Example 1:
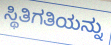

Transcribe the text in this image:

ಸ್ಥಿತಿಗತಿಯನ್ನು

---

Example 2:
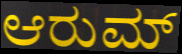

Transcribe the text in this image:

ಆರುಮ್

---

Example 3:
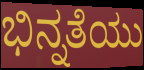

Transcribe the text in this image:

ಭಿನ್ನತೆಯು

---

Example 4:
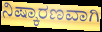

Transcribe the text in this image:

ನಿಷ್ಕಾರಣವಾಗಿ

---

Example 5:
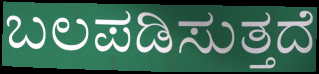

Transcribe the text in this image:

ಬಲಪಡಿಸುತ್ತದೆ